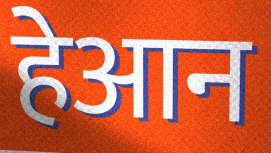
हेआन